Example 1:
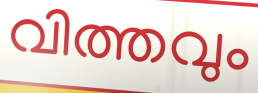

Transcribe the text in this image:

വിത്തവും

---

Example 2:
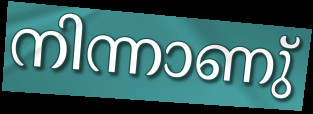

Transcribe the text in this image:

നിന്നാണു്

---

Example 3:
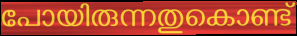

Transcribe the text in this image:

പോയിരുന്നതുകൊണ്ട്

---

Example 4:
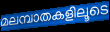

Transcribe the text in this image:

മലമ്പാതകളിലൂടെ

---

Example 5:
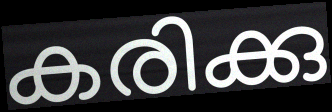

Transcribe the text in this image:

കരിക്കു